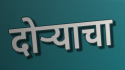
दोर्‍याचा